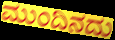
ಮುಂದಿನದು